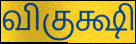
விகுக்ஷி